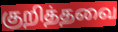
குறித்தவை